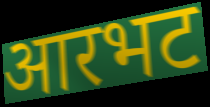
आरभट